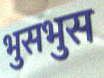
भुसभुस